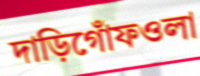
দাড়িগোঁফওলা